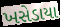
ખસેડાયા